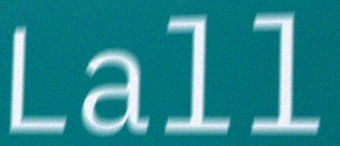
Lall